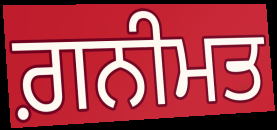
ਗ਼ਨੀਮਤ